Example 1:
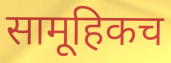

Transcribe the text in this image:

सामूहिकच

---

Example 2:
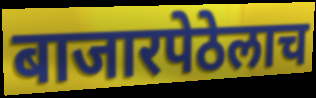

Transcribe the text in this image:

बाजारपेठेलाच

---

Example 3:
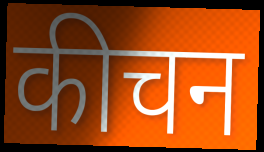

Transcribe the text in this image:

कीचन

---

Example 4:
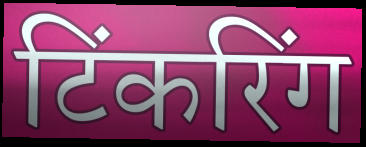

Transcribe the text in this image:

टिंकरिंग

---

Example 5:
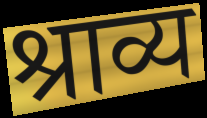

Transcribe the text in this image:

श्राव्य